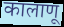
कालाणू